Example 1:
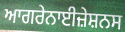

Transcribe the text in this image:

ਆਗਰੇਨਾਈਜ਼ੇਸ਼ਨਸ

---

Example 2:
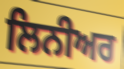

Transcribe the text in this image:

ਲਿਨੀਅਰ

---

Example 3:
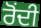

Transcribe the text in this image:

ਰੋਂਦੀ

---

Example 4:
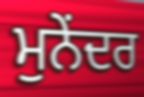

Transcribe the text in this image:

ਮੁਨੇਂਦਰ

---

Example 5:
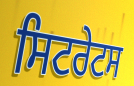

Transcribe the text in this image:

ਸਿਟਰੇਟਸ